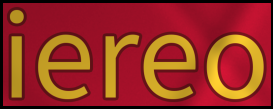
iereo